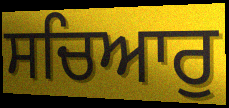
ਸਚਿਆਰੁ